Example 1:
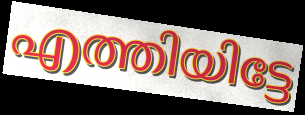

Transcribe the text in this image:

എത്തിയിട്ടേ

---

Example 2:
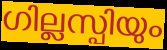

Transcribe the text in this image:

ഗില്ലസ്പിയും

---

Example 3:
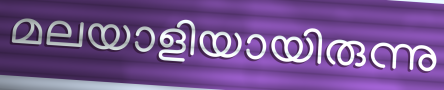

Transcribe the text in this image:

മലയാളിയായിരുന്നു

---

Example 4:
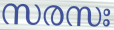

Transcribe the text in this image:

സരസഃ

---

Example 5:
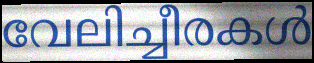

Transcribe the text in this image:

വേലിച്ചീരകൾ